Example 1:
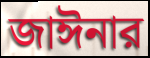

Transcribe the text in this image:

জাঈনার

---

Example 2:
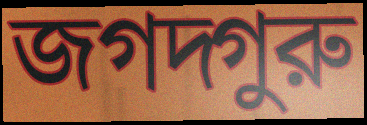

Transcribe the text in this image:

জগদ্গুরু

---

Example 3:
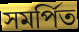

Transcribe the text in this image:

সমর্পিত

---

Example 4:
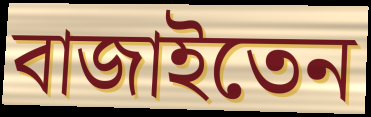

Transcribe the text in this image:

বাজাইতেন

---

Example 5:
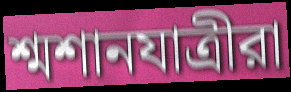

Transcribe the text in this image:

শ্মশানযাত্রীরা